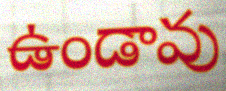
ఉండావు